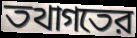
তথাগতের